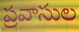
ప్రవాసుల